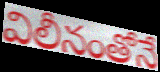
విలీనంతోనే